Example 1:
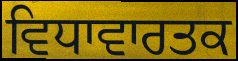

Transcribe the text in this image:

ਵਿਧਾਵਾਰਤਕ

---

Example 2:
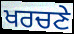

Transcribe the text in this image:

ਖਰਚਣੇ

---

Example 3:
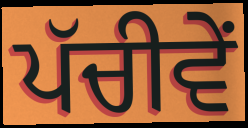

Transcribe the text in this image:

ਪੱਚੀਵੇਂ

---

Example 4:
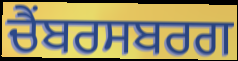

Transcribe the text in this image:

ਚੈਂਬਰਸਬਰਗ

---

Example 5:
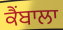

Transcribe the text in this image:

ਕੈਂਬਾਲਾ